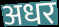
अधर